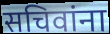
सचिवांना